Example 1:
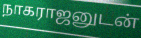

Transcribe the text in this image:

நாகராஜனுடன்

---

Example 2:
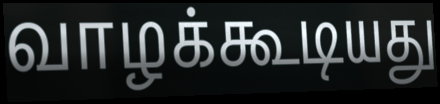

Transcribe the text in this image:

வாழக்கூடியது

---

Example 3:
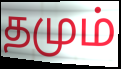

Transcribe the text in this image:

தமும்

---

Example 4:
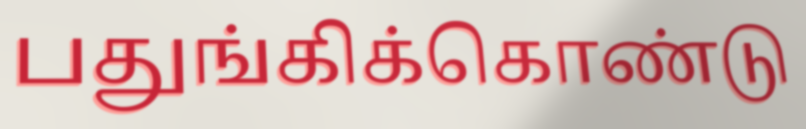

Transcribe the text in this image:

பதுங்கிக்கொண்டு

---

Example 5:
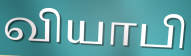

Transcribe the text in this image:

வியாபி